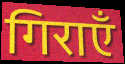
गिराएँ